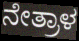
ನೇತ್ರಾಳ